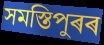
সমস্তিপুৰৰ